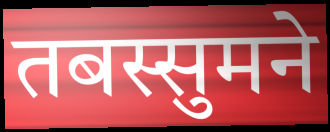
तबस्सुमने